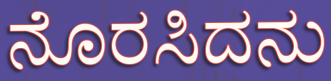
ನೊರಸಿದನು